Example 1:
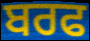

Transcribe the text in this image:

ਬਰਫ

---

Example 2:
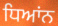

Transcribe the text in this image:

ਧਿਆਂਨ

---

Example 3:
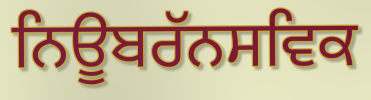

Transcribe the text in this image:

ਨਿਊਬਰੱਨਸਵਿਕ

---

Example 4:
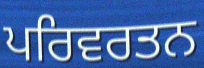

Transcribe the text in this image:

ਪਰਿਵਰਤਨ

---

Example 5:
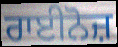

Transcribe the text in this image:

ਰਾਈਨੋਜ਼